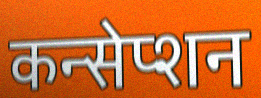
कन्सेप्शन